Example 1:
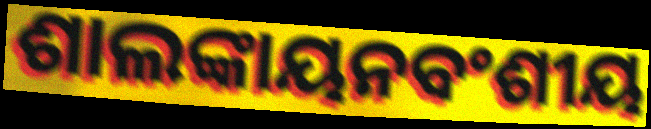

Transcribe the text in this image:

ଶାଲଙ୍କାୟନବଂଶୀୟ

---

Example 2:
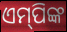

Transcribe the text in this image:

ଏମ୍‌ପିଙ୍କ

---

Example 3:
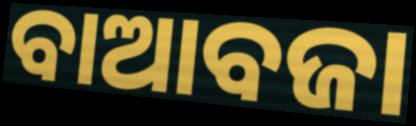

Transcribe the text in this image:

ବାଆବଜା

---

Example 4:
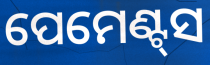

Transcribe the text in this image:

ପେମେଣ୍ଟ୍‌ସ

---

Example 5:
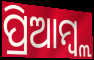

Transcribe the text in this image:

ପ୍ରିଆମ୍ବ୍ଲ